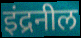
इंद्रनील